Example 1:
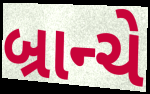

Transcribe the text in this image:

બ્રાન્ચે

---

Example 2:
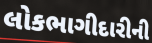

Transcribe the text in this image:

લોકભાગીદારીની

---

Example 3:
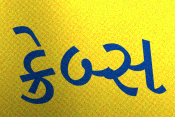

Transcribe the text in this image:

ક્રેબ્સ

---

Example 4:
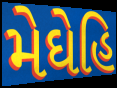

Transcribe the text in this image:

મેઘેહિ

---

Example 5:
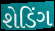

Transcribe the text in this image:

શેડિંગ